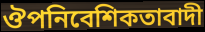
ঔপনিবেশিকতাবাদী